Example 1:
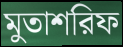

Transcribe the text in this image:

মুতাশরিফ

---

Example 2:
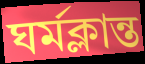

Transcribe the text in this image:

ঘর্মক্লান্ত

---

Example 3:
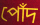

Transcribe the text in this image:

পোঁদ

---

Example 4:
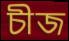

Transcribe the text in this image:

চীজ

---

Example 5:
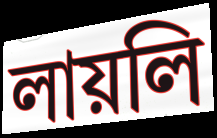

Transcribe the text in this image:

লায়লি